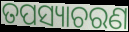
ତପସ୍ୟାଚରଣ